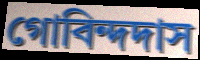
গোবিন্দদাস